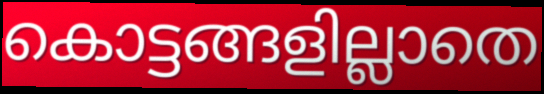
കൊട്ടങ്ങളില്ലാതെ